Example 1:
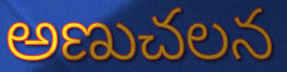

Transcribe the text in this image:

అణుచలన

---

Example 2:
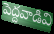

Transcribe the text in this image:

పెద్దవాడివి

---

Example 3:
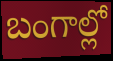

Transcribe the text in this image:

బంగాల్లో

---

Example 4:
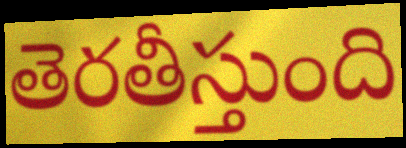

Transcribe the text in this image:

తెరతీస్తుంది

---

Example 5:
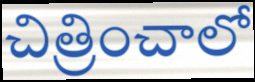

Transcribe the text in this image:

చిత్రించాలో